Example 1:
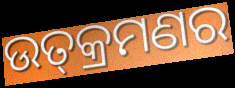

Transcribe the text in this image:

ଉତ୍‍କ୍ରମଣର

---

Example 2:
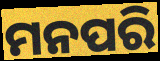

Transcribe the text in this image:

ମନପରି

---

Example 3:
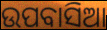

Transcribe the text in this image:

ଉପବାସିଆ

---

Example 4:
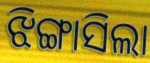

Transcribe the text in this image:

ଝିଙ୍ଗାସିଲା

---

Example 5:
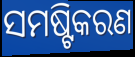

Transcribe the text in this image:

ସମଷ୍ଟିକରଣ